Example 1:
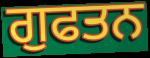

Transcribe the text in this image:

ਗੁਫਤਨ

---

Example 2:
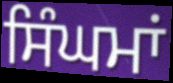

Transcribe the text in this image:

ਸਿੰਘਮਾਂ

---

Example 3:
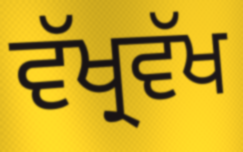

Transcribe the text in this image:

ਵੱਖ੍ਰਵੱਖ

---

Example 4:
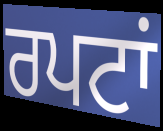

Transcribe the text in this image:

ਰਪਟਾਂ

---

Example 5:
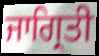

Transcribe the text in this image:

ਜਾਗ੍ਰਿਤੀ